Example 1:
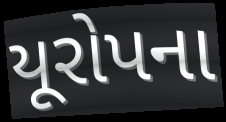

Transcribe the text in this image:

યૂરોપના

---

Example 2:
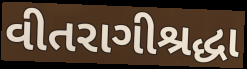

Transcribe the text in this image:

વીતરાગીશ્રદ્ધા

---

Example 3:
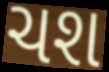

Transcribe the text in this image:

ચશ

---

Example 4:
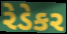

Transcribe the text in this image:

રેડેકર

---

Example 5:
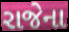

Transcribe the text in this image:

રાજેના